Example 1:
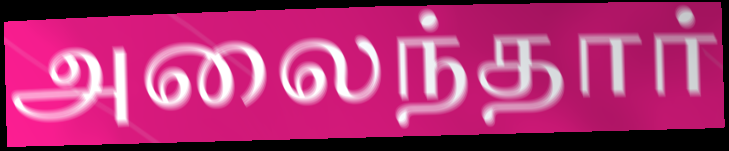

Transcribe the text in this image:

அலைந்தார்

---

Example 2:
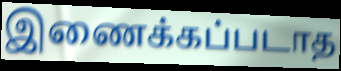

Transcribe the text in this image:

இணைக்கப்படாத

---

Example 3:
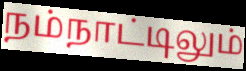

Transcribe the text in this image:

நம்நாட்டிலும்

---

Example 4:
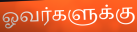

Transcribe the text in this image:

ஓவர்களுக்கு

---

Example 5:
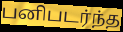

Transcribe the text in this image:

பனிபடர்ந்த